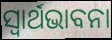
ସ୍ଵାର୍ଥଭାବନା